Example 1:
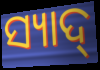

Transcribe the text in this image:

ସ୍ୟାଦ୍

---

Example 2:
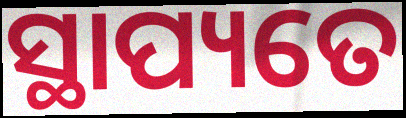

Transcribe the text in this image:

ସ୍ଥାପ୍ୟତେ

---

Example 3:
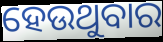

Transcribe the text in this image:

ହେଉଥୁବାର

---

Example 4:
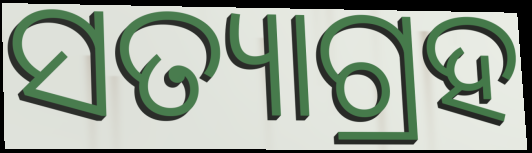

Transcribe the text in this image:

ସତ୍ୟାଗ୍ରହ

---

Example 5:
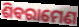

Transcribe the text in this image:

ଶିବରାମେଣ